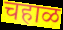
चहाळ